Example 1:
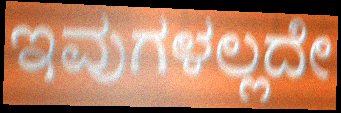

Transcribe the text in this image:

ಇವುಗಳಲ್ಲದೇ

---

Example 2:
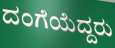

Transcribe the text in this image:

ದಂಗೆಯೆದ್ದರು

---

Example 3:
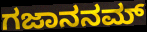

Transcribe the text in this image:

ಗಜಾನನಮ್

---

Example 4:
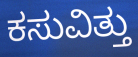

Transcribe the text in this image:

ಕಸುವಿತ್ತು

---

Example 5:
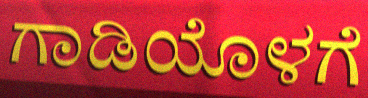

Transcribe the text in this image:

ಗಾಡಿಯೊಳಗೆ